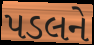
પડલને